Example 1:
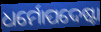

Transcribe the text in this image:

ଧର୍ମୋପଦେଷ୍ଟା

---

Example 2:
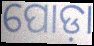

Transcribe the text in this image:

ପୋଡ଼ା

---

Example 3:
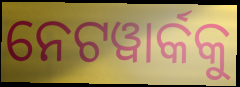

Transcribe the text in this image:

ନେଟୱାର୍କକୁ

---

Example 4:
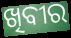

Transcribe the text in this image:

ଖିବୀର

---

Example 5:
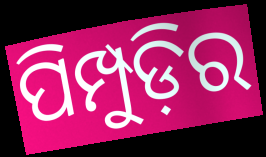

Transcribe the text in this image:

ପିମ୍ପୁଡ଼ିର